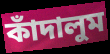
কাঁদালুম